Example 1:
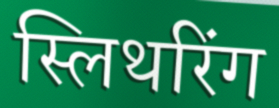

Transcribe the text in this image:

स्लिथरिंग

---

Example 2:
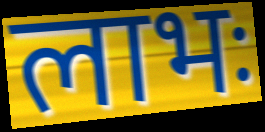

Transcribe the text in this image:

लाभः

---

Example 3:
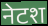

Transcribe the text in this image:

नेटश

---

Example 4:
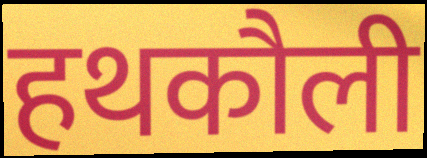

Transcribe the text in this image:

हथकौली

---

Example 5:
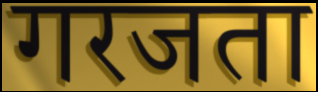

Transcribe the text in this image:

गरजता